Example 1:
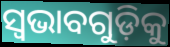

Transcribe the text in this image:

ସ୍ୱଭାବଗୁଡ଼ିକୁ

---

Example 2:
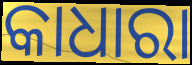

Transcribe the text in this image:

କାଧାରା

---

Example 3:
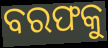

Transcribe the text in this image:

ବରଫକୁ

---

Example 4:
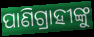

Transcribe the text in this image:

ପାଣିଗ୍ରାହୀଙ୍କୁ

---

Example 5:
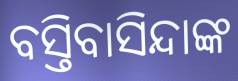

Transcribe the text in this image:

ବସ୍ତିବାସିନ୍ଦାଙ୍କ